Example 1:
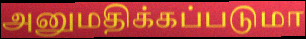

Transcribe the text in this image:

அனுமதிக்கப்படுமா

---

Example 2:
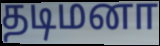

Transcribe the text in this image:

தடிமனா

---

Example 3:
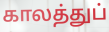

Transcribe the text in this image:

காலத்துப்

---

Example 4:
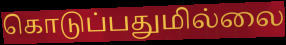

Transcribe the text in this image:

கொடுப்பதுமில்லை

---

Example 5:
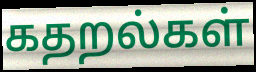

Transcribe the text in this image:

கதறல்கள்